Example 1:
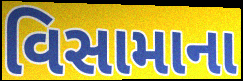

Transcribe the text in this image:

વિસામાના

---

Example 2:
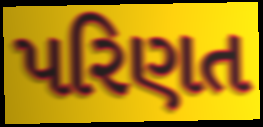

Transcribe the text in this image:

પરિણત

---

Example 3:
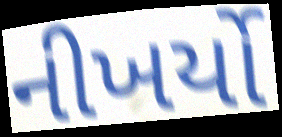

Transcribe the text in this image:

નીખર્યો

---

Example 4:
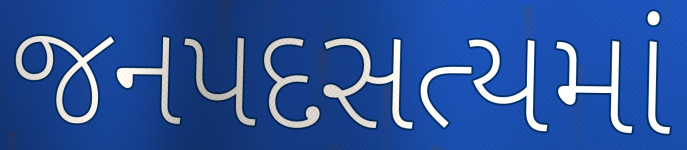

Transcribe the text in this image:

જનપદસત્યમાં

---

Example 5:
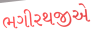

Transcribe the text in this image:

ભગીરથજીએ